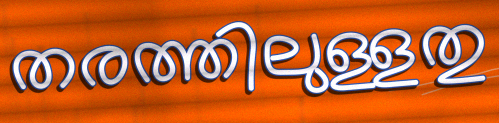
തരത്തിലുള്ളതു